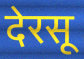
देरसू